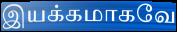
இயக்கமாகவே